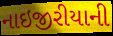
નાઇજીરીયાની